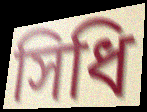
সিধি